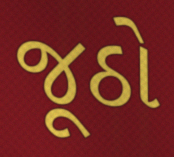
જૂઠો